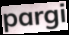
pargi